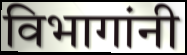
विभागांनी